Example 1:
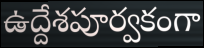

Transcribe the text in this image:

ఉద్దేశపూర్వకంగా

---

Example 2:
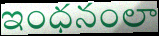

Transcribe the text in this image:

ఇంధనంలా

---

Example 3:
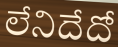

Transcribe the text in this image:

లేనిదేదో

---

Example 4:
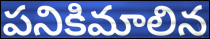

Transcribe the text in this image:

పనికిమాలిన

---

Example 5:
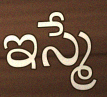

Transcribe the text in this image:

ఇస్మే